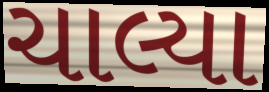
ચાલ્યા